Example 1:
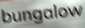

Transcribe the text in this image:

bungalow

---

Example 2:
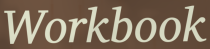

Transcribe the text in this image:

Workbook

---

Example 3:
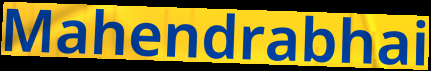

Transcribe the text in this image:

Mahendrabhai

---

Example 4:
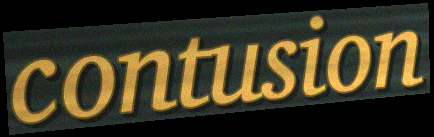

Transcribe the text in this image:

contusion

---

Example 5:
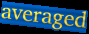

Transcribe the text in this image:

averaged